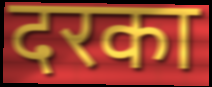
दरका